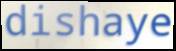
dishaye